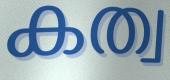
കത്വ